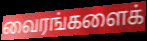
வைரங்களைக்